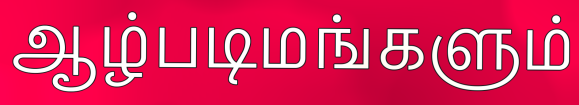
ஆழ்படிமங்களும்